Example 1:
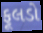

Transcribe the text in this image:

ફૂલડો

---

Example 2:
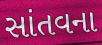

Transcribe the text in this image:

સાંતવના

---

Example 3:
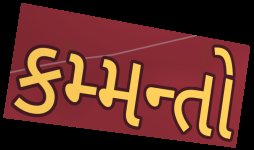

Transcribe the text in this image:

કમ્મન્તો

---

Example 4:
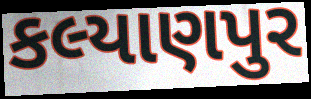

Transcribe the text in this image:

કલ્યાણપુર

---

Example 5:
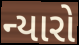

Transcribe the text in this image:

ન્યારો